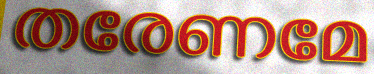
തരേണമേ